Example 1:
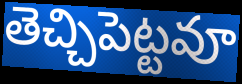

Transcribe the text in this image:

తెచ్చిపెట్టవూ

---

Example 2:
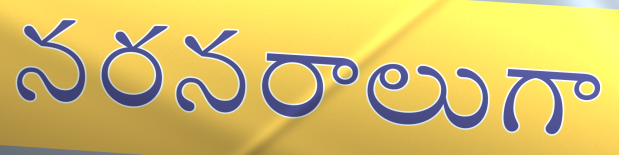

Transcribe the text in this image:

నరనరాలుగా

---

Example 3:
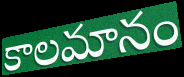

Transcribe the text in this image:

కాలమానం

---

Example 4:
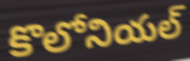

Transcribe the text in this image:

కొలోనియల్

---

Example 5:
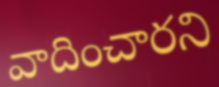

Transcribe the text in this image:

వాదించారని